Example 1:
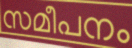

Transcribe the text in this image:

സമീപനം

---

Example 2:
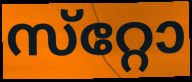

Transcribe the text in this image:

സ്‌റ്റോ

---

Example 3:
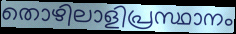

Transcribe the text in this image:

തൊഴിലാളിപ്രസ്ഥാനം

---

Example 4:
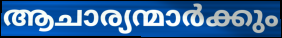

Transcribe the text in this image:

ആചാര്യന്മാർക്കും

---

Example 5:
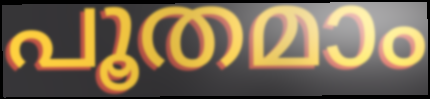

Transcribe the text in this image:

പൂതമാം